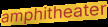
amphitheater